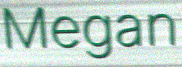
Megan